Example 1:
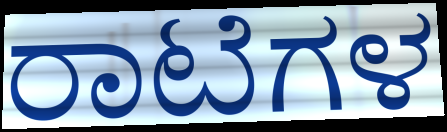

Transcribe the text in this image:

ರಾಟೆಗಳ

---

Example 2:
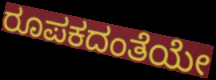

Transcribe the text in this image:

ರೂಪಕದಂತೆಯೇ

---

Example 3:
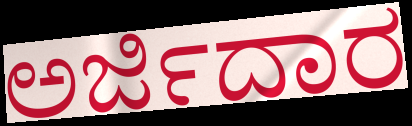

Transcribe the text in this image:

ಅರ್ಜಿದಾರ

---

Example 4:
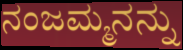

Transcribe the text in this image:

ನಂಜಮ್ಮನನ್ನು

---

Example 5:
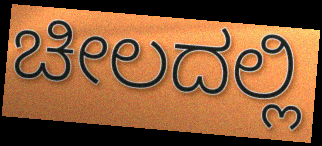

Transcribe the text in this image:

ಚೀಲದಲ್ಲಿ